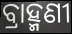
ବ୍ରାହ୍ମଣୀ